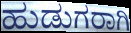
ಹುಡುಗರಾಗಿ